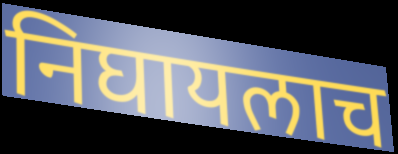
निघायलाच